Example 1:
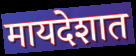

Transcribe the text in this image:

मायदेशात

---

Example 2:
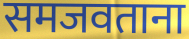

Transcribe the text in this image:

समजवताना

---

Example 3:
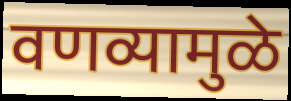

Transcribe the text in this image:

वणव्यामुळे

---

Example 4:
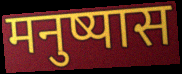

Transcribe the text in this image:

मनुष्यास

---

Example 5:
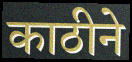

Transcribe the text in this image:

काठीने